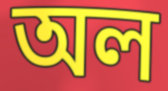
অল